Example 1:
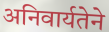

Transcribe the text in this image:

अनिवार्यतेने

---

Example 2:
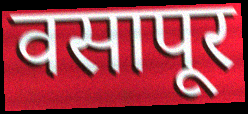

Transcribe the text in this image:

वसापूर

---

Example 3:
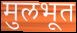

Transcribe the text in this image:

मुलभूत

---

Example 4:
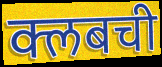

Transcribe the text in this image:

क्लबची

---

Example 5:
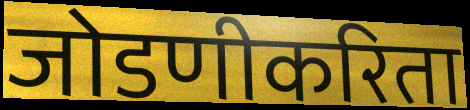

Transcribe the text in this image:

जोडणीकरिता